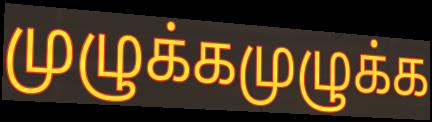
முழுக்கமுழுக்க